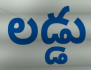
లడ్డు